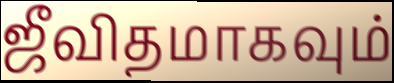
ஜீவிதமாகவும்